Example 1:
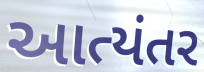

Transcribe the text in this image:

આત્યંતર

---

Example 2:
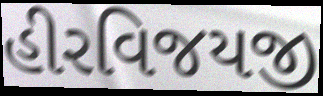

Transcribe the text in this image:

હીરવિજયજી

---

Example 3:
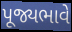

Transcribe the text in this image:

પૂજ્યભાવે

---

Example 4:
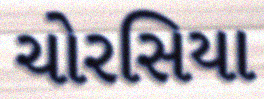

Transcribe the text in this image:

ચોરસિયા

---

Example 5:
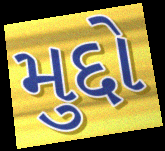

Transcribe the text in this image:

મુદ્દો